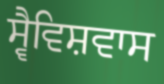
ਸ੍ਵੈਵਿਸ਼ਵਾਸ